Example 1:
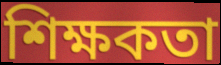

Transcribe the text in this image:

শিক্ষকতা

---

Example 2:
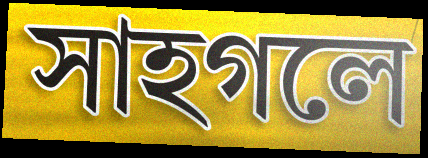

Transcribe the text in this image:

সাহগলে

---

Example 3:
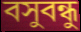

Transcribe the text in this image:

বসুবন্ধু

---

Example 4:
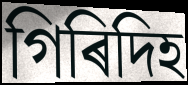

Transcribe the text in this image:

গিৰিদিহ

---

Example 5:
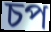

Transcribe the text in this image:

চপ